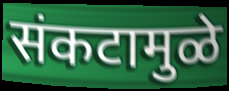
संकटामुळे